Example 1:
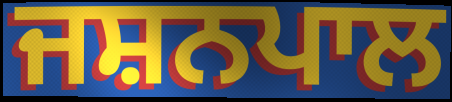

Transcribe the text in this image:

ਜਸ਼ਨਪਾਲ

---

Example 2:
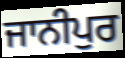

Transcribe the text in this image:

ਜਾਨੀਪੁਰ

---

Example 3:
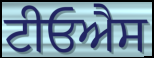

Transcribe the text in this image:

ਟੀਓਐਸ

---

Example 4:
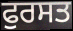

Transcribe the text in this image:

ਫੁਰਸਤ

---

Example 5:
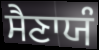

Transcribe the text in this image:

ਸੈਣਾਯੰ